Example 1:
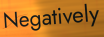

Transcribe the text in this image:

Negatively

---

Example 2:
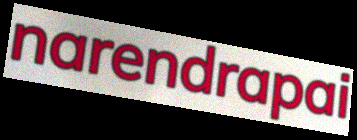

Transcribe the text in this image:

narendrapai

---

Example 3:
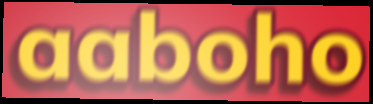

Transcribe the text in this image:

aaboho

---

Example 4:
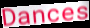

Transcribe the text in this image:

Dances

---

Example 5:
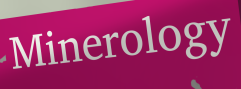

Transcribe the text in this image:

Minerology